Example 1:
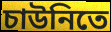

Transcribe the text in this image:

চাউনিতে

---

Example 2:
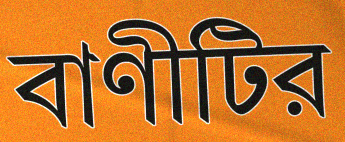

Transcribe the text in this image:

বাণীটির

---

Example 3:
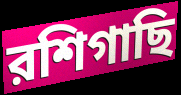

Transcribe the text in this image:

রশিগাছি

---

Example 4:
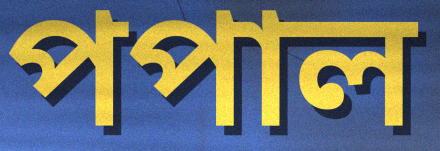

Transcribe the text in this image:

পপাল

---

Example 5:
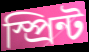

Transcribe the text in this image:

স্প্রিন্ট